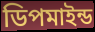
ডিপমাইন্ড